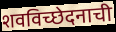
शवविच्छेदनाची